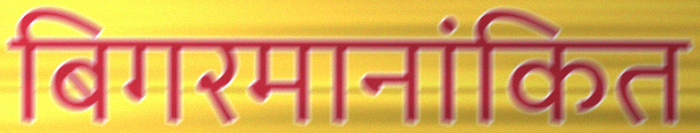
बिगरमानांकित